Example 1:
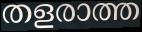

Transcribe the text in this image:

തളരാത്ത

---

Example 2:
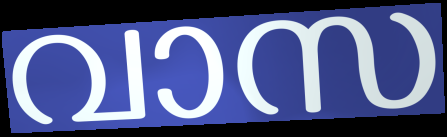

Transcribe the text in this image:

വാസ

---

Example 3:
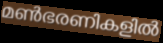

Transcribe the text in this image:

മൺഭരണികളിൽ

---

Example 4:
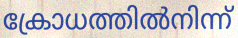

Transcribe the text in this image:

ക്രോധത്തിൽനിന്ന്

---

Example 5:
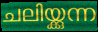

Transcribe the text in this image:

ചലിയ്ക്കുന്ന